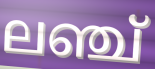
ലഞ്ച്